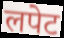
लपेट